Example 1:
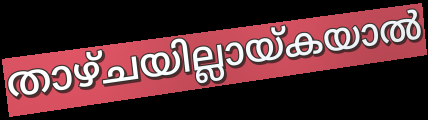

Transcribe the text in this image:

താഴ്ചയില്ലായ്കയാൽ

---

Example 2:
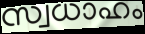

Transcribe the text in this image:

സ്വധാഹം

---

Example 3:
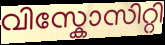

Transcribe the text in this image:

വിസ്കോസിറ്റി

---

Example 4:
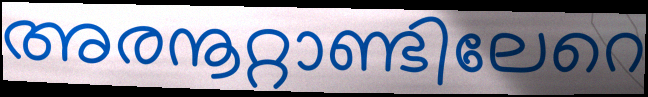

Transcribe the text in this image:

അരനൂറ്റാണ്ടിലേറെ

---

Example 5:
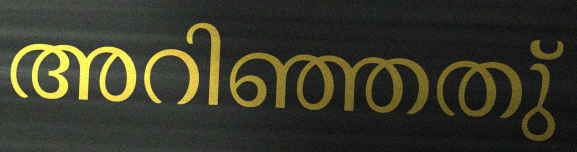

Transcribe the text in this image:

അറിഞ്ഞതു്